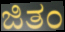
ಜಿತಂ